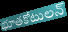
భూతకోటులన్